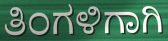
ತಿಂಗಳಿಗಾಗಿ